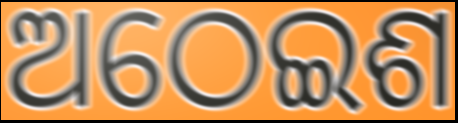
ଅଠେଇଶ